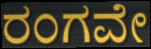
ರಂಗವೇ